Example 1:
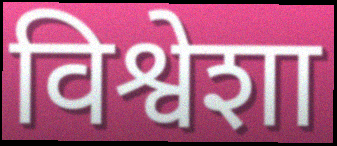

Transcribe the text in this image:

विश्वेशा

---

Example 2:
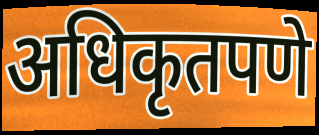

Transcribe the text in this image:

अधिकृतपणे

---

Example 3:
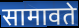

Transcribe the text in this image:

सामावते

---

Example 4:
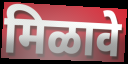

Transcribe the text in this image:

मिळावे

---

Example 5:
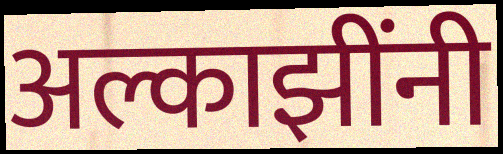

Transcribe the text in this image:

अल्काझींनी